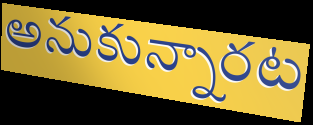
అనుకున్నారట